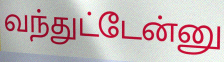
வந்துட்டேன்னு